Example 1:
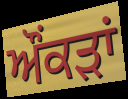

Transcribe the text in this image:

ਔਂਕੜਾਂ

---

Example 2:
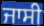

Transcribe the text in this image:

ਜਾਸੀ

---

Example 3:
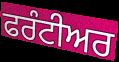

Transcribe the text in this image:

ਫਰੰਟੀਅਰ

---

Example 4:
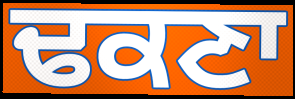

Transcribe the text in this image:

ਢਕਣਾ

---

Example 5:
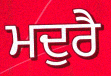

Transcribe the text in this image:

ਮਦੁਰੈ